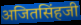
अजितसिंहजी